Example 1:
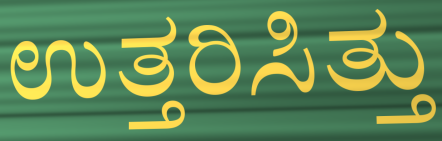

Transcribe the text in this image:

ಉತ್ತರಿಸಿತ್ತು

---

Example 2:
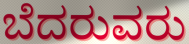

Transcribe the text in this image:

ಬೆದರುವರು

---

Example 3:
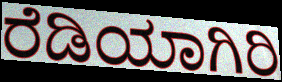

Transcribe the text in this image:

ರೆಡಿಯಾಗಿರಿ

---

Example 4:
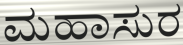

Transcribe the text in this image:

ಮಹಾಸುರ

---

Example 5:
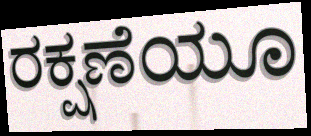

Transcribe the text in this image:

ರಕ್ಷಣೆಯೂ